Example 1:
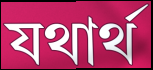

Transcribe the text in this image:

যথাৰ্থ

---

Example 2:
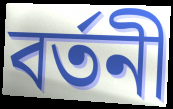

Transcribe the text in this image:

বৰ্তনী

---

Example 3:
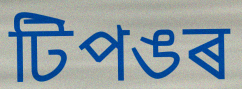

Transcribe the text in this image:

টিপঙৰ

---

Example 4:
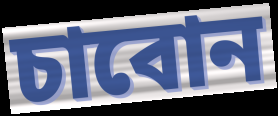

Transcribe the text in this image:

চাবোন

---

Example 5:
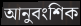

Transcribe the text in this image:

আনুবংশিক